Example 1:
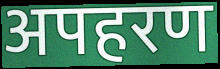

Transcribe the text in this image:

अपहरण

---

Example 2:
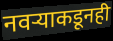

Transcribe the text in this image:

नवऱ्याकडूनही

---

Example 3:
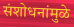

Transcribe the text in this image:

संशोधनांमुळे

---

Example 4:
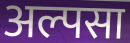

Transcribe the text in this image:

अल्पसा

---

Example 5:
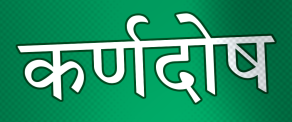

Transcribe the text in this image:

कर्णदोष